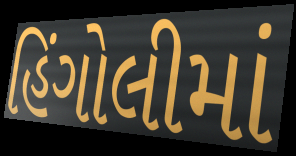
હિંગોલીમાં